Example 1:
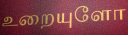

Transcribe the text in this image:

உறையுளோ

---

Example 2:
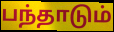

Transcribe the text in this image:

பந்தாடும்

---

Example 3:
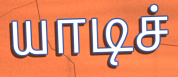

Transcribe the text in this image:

யாடிச்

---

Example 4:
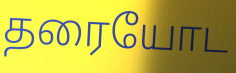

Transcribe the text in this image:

தரையோட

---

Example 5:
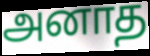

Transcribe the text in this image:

அனாத